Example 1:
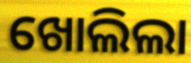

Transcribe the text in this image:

ଖୋଲିଲା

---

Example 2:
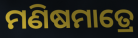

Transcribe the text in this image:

ମଣିଷମାତ୍ରେ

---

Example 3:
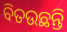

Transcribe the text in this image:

ବିତଉଛନ୍ତି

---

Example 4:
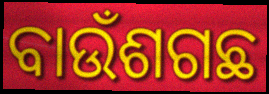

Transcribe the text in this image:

ବାଉଁଶଗଛ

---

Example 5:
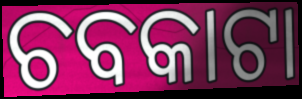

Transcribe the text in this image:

ଚବକାଟା